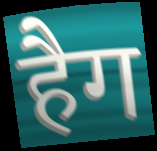
हैग